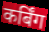
कर्बिंग